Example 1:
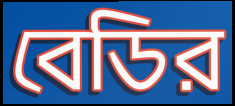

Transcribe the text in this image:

বেডির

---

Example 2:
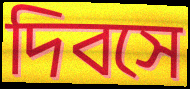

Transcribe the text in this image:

দিবসে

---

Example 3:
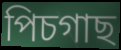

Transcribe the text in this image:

পিচগাছ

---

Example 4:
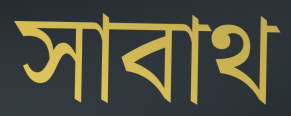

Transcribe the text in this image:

সাবাথ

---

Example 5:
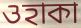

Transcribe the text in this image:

ওহাকা